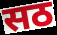
सठ